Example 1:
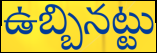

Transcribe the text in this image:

ఉబ్బినట్టు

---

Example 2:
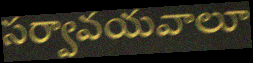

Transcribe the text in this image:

సర్వావయవాలూ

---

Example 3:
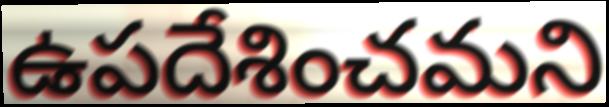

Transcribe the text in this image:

ఉపదేశించమని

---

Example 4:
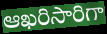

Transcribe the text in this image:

ఆఖరిసారిగా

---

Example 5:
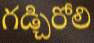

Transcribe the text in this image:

గడ్చిరోలి